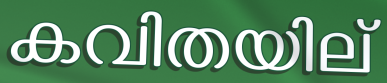
കവിതയില്